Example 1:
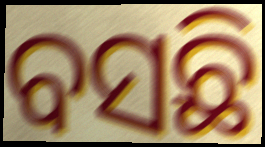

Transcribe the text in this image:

ବସଛି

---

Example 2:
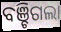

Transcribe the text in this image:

ବଞ୍ଚିଗଲା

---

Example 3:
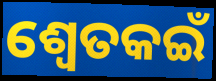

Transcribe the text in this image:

ଶ୍ୱେତକଇଁ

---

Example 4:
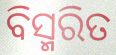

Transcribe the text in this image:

ବିସ୍ମରିତ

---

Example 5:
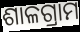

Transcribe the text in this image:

ଶାଳଗ୍ରାମ